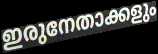
ഇരുനേതാക്കളും